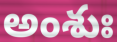
అంశుః